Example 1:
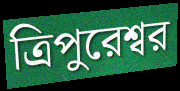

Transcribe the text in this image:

ত্রিপুরেশ্বর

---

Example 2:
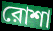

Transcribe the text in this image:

রোশা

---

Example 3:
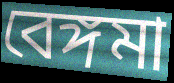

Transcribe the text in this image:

বেঙ্গমা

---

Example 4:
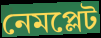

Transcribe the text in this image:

নেমপ্লেট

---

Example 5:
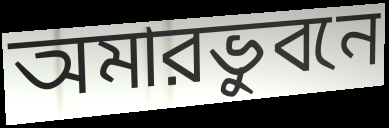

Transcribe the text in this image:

অমারভুবনে